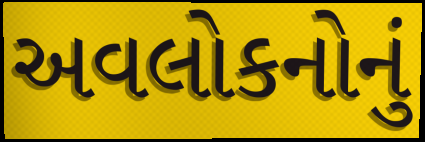
અવલોકનોનું